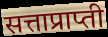
सत्ताप्राप्ती